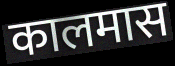
कालमास